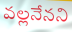
వల్లనేనని